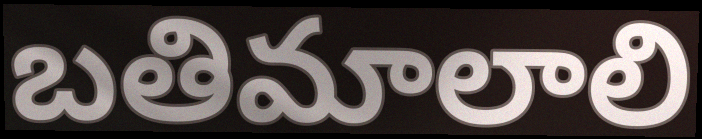
బతిమాలాలి